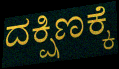
ದಕ್ಷಿಣಕ್ಕೆ